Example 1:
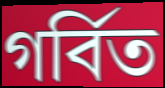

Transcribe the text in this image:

গর্বিত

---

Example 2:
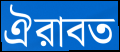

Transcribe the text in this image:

ঐরাবত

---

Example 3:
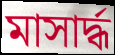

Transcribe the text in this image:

মাসার্দ্ধ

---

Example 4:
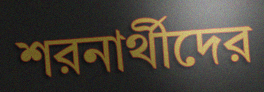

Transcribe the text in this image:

শরনার্থীদের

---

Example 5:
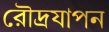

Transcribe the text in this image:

রৌদ্রযাপন